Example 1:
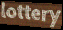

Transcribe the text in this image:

lottery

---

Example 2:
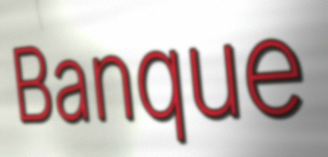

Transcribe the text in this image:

Banque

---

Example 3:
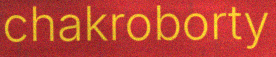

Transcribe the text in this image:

chakroborty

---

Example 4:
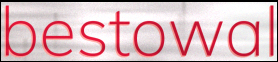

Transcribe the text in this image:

bestowal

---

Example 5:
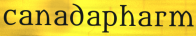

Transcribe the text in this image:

canadapharm